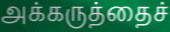
அக்கருத்தைச்